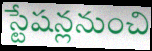
స్టేషన్లనుంచి